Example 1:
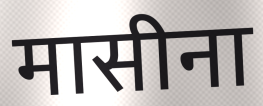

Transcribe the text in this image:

मासीना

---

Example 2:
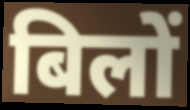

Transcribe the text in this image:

बिलों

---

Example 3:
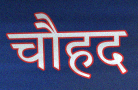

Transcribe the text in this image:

चौहद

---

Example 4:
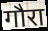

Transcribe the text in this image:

गौरा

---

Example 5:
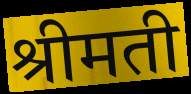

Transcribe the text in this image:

श्रीमती